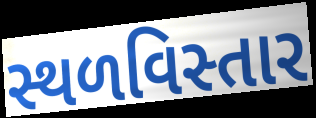
સ્થળવિસ્તાર